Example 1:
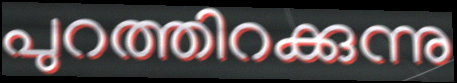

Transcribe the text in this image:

പുറത്തിറക്കുന്നു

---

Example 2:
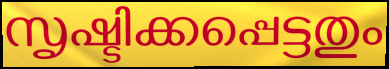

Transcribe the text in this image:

സൃഷ്ടിക്കപ്പെട്ടതും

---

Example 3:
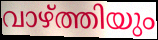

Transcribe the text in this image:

വാഴ്ത്തിയും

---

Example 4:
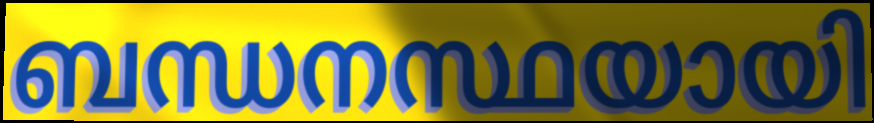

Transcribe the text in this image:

ബന്ധനസ്ഥയായി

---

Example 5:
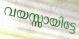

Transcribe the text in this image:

വയസ്സായിട്ടേ